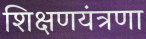
शिक्षणयंत्रणा